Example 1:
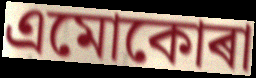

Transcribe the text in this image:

এমোকোৰা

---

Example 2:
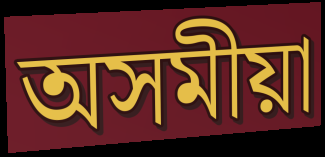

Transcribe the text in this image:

অসমীয়া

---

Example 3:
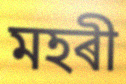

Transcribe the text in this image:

মহৰী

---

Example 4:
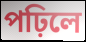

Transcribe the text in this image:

পঢ়িলে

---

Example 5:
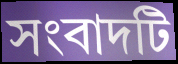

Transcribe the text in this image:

সংবাদটি